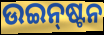
ଉଇନ୍‌ଷ୍ଟନ